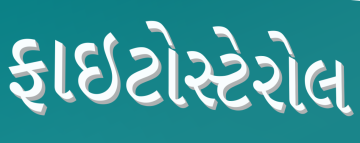
ફાઇટોસ્ટેરોલ